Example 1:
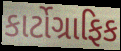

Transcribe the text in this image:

કાર્ટોગ્રાફિક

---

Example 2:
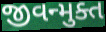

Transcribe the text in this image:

જીવન્મુક્ત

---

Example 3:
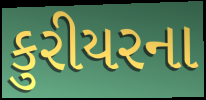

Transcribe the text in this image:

કુરીયરના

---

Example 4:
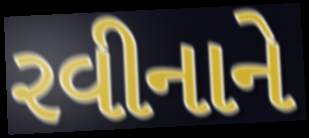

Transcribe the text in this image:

રવીનાને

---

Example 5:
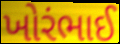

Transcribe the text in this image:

ખોરંભાઈ